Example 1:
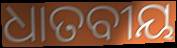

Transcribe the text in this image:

ଧାତବୀୟ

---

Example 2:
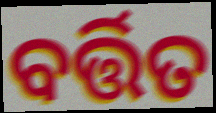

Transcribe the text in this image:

ବର୍ତ୍ତିତ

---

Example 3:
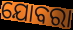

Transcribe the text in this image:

ଯୋବରା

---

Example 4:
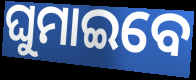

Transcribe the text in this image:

ଘୁମାଇବେ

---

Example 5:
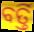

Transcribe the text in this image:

ବର୍ତ୍ତି